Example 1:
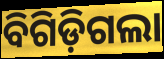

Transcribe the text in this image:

ବିଗିଡ଼ିଗଲା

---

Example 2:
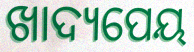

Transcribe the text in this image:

ଖାଦ୍ୟପେୟ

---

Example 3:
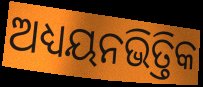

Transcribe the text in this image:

ଅଧ୍ୟୟନଭିତ୍ତିକ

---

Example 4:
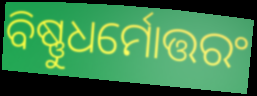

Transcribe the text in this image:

ବିଷ୍ଣୁଧର୍ମୋତ୍ତରଂ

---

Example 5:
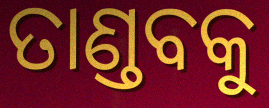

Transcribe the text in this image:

ତାଣ୍ଡବକୁ